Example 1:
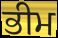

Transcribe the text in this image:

ਭੀਮ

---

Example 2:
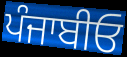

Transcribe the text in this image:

ਪੰਜਾਬੀਓ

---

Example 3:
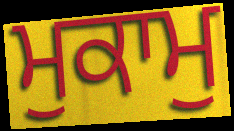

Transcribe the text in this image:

ਮੁਕਾਮੁ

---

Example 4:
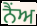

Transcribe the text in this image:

ਨੈਂਅ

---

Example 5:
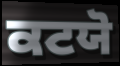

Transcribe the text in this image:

ਕਟਯੋ